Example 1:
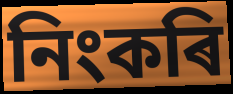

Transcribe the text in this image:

নিংকৰি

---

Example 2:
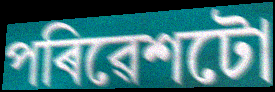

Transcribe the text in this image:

পৰিৱেশটো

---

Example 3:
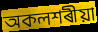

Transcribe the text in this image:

অকলশৰীয়া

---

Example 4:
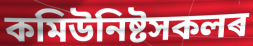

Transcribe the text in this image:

কমিউনিষ্টসকলৰ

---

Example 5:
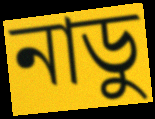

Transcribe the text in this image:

নাডু